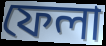
ফেলা